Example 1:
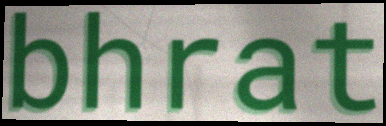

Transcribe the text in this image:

bhrat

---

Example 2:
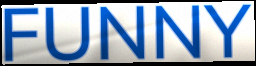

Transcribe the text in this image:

FUNNY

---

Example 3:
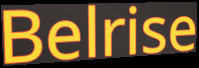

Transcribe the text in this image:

Belrise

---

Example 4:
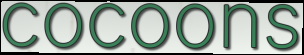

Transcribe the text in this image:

cocoons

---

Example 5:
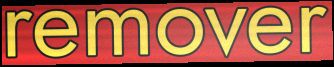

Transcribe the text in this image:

remover